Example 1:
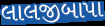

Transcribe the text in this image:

લાલજીબાપા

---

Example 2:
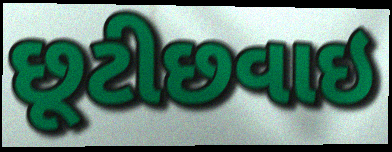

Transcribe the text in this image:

છૂટીછવાઇ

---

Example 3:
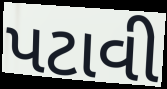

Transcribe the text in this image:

પટાવી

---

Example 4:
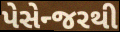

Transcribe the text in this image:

પેસેન્જરથી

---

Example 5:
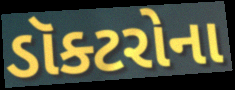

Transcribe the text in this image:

ડૉક્ટરોના